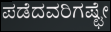
ಪಡೆದವರಿಗಷ್ಟೇ